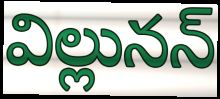
విల్లునన్